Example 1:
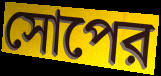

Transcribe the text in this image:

সোপের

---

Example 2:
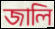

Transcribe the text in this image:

জালি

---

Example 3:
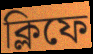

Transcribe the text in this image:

ক্লিফে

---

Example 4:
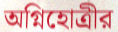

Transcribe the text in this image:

অগ্নিহোত্রীর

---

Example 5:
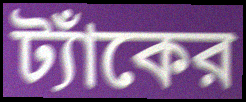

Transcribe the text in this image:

ট্যাঁকের